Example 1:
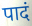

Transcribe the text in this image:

पादं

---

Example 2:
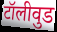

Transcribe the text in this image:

टॉलीवुड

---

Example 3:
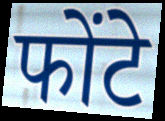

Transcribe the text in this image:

फोंटे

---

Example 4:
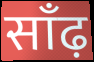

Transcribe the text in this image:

साँढ़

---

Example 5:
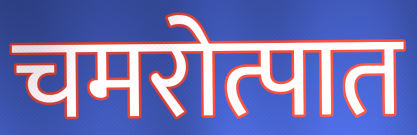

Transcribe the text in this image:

चमरोत्पात